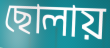
ছোলায়